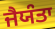
ਜੈਯੰਤਾ